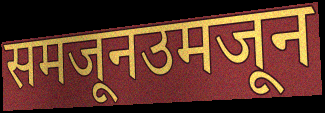
समजूनउमजून